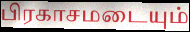
பிரகாசமடையும்